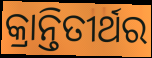
କ୍ରାନ୍ତିତୀର୍ଥର